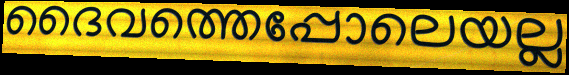
ദൈവത്തെപ്പോലെയല്ല